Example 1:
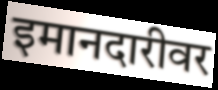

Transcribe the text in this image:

इमानदारीवर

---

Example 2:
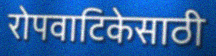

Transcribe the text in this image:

रोपवाटिकेसाठी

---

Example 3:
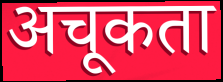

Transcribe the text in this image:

अचूकता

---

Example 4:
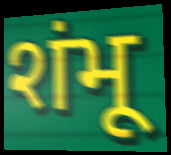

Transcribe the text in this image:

शंभू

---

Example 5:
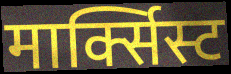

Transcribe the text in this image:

मार्क्सिस्ट